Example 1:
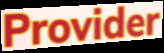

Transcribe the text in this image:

Provider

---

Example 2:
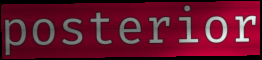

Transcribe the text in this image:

posterior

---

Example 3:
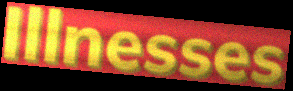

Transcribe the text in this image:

Illnesses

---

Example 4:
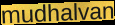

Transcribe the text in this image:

mudhalvan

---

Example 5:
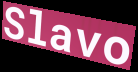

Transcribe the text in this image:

Slavo